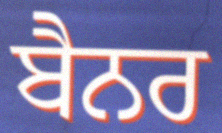
ਬੈਨਰ